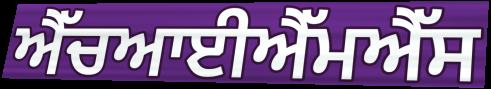
ਐੱਚਆਈਐੱਮਐੱਸ